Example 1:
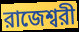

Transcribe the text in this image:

রাজেশ্বরী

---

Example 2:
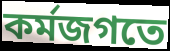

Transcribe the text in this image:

কর্মজগতে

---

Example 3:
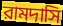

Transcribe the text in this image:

রামদাসি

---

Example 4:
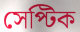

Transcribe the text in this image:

সেপ্টিক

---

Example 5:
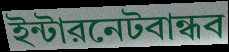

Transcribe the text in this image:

ইন্টারনেটবান্ধব